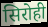
सिरोही